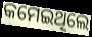
କମେଇଥିଲେ